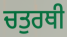
ਚਤੁਰਥੀ